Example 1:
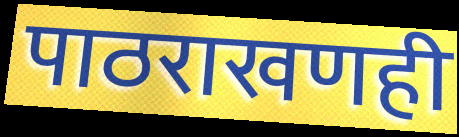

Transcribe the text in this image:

पाठराखणही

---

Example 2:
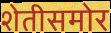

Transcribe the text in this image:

शेतीसमोर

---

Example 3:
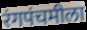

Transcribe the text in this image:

रंगपंचमीला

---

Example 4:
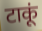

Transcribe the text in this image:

टाकूं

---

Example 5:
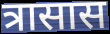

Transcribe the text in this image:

त्रासास